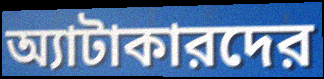
অ্যাটাকারদের